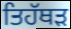
ਤਿਹੱਥੜ